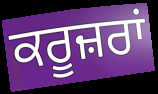
ਕਰੂਜ਼ਰਾਂ